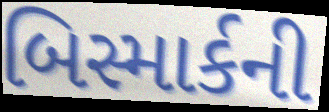
બિસ્માર્કની